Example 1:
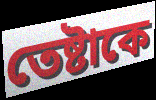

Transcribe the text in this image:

তেষ্টাকে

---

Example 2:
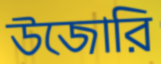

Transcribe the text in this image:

উজোরি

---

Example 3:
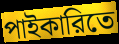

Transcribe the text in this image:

পাইকারিতে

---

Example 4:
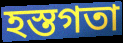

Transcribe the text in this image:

হস্তগতা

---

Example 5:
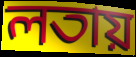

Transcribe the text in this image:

লতায়